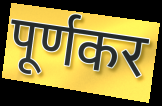
पूर्णकर